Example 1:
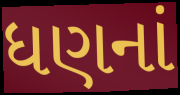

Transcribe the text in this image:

ધણનાં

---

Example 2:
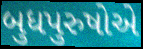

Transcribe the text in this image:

બુધપુરુષોએ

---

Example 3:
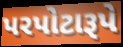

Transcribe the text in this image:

પરપોટારૂપે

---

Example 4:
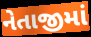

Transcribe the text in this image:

નેતાજીમાં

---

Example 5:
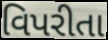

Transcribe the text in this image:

વિપરીતા